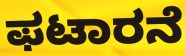
ಫಟಾರನೆ